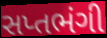
સપ્તભંગી